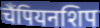
चैंपियनशिप